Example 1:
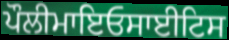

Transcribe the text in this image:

ਪੌਲੀਮਾਇਓਸਾਈਟਿਸ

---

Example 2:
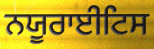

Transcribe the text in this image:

ਨਯੂਰਾਈਟਿਸ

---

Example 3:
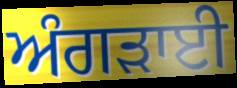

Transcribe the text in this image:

ਅੰਗੜਾਈ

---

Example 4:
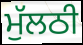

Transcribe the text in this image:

ਮੁੱਲਠੀ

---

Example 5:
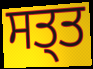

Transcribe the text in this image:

ਸਤ੍ਤ